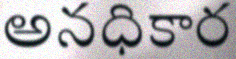
అనధికార